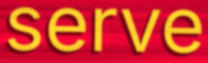
serve